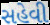
સહેવી